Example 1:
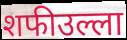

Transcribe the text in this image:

शफीउल्ला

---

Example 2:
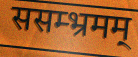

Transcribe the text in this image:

ससम्भ्रमम्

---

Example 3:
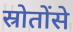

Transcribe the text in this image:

स्रोतोंसे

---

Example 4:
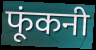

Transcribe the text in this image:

फूंकनी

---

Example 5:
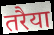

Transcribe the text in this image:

तरैया